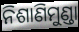
ନିଶାଣିମୁଣ୍ଡା